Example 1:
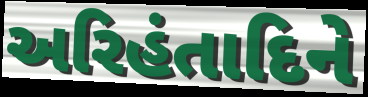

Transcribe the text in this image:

અરિહંતાદિને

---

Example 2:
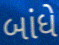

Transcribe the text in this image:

બાંધે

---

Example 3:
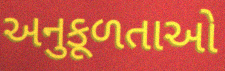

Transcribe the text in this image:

અનુકૂળતાઓ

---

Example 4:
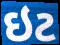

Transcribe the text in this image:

ઇટ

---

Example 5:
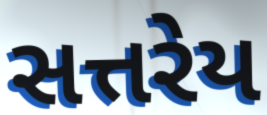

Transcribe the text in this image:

સત્તરેય